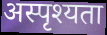
अस्पृश्यता